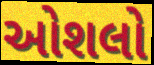
ઓશલો